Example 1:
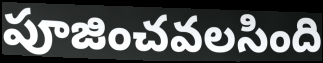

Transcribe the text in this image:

పూజించవలసింది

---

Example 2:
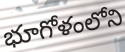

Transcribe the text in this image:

భూగోళంలోని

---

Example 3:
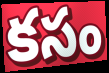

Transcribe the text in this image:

కసం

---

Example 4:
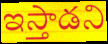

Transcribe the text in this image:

ఇస్తాడని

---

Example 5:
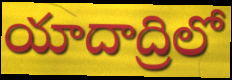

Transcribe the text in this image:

యాదాద్రిలో